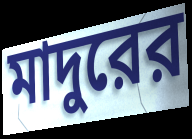
মাদুরের